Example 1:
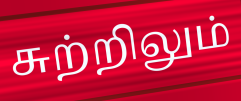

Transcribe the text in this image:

சுற்றிலும்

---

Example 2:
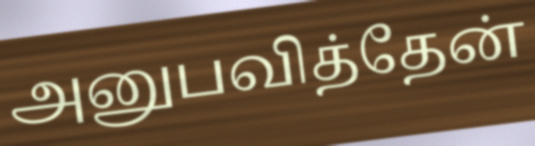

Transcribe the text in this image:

அனுபவித்தேன்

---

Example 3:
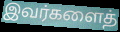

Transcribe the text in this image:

இவர்களைத்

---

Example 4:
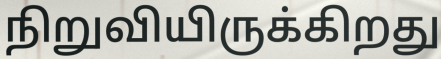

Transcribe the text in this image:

நிறுவியிருக்கிறது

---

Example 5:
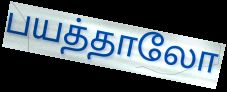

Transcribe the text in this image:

பயத்தாலோ